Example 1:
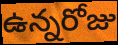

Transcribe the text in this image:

ఉన్నరోజు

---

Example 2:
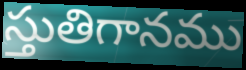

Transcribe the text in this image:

స్తుతిగానము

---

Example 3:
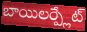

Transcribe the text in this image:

బాయిలర్ప్లేట్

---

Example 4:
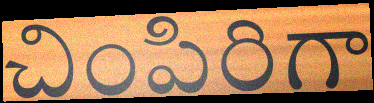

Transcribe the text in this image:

చింపిరిగా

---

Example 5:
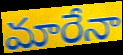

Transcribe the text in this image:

మారేనా